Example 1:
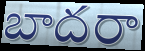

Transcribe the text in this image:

బాదరా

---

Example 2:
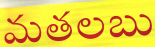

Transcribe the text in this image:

మతలబు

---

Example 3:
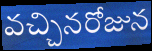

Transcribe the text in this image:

వచ్చినరోజున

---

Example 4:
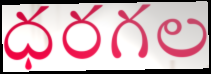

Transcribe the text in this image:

ధరగల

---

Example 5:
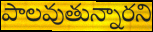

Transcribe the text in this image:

పాలవుతున్నారని